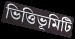
ভিত্তিভূমিটি